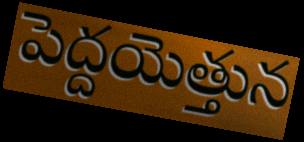
పెద్దయెత్తున